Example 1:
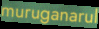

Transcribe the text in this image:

muruganarul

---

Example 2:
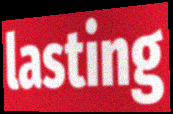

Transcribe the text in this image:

lasting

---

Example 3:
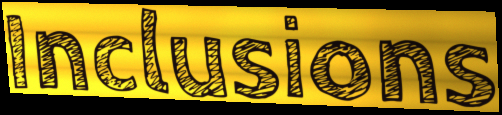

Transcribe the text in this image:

Inclusions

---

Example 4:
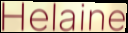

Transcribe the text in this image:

Helaine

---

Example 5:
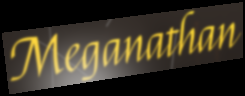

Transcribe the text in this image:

Meganathan